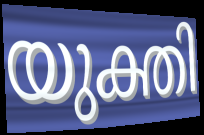
യുക്തി